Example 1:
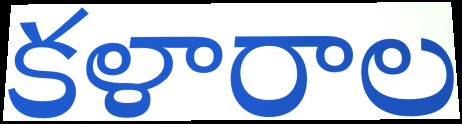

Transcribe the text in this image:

కళారాల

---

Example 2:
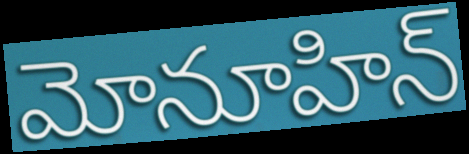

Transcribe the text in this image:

మోనూహిన్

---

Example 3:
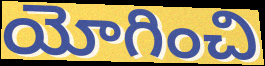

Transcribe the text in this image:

యోగించి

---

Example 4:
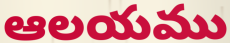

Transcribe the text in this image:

ఆలయము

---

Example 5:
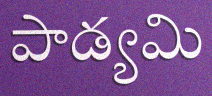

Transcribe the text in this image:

పాడ్యమి